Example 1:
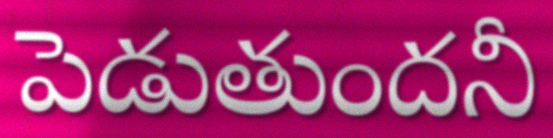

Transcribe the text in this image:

పెడుతుందనీ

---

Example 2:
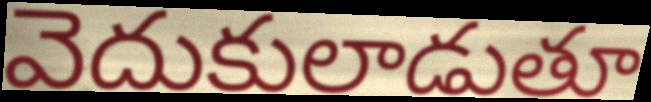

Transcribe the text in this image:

వెదుకులాడుతూ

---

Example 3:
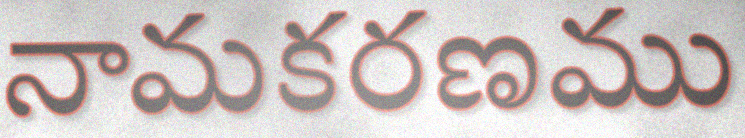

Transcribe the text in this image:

నామకరణము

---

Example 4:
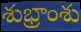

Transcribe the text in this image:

శుభ్రాంశు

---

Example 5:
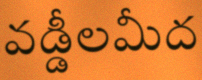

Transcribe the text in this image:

వడ్డీలమీద